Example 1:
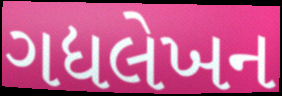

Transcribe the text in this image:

ગદ્યલેખન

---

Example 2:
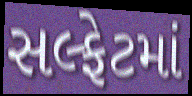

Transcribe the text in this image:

સલ્ફેટમાં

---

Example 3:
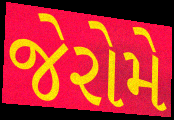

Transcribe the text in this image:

જેરોમે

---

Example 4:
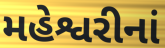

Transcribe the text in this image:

મહેશ્વરીનાં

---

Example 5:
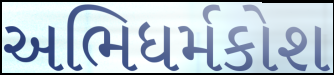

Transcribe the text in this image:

અભિધર્મકોશ